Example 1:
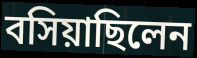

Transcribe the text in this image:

বসিয়াছিলেন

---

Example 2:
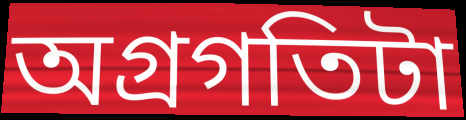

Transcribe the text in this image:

অগ্রগতিটা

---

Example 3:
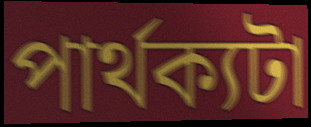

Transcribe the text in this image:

পার্থক্যটা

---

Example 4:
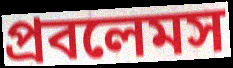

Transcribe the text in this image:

প্রবলেমস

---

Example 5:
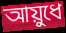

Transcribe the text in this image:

আয়ুধে